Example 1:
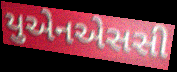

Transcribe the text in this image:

યુએનએસસી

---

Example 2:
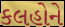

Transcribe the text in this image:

કલહોને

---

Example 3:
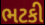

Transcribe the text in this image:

ભટકી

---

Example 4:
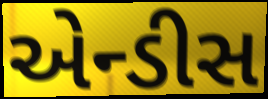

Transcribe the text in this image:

એન્ડીસ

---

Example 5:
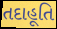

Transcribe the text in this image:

તદાહૂતિ